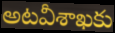
అటవీశాఖకు